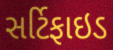
સર્ટિફાઇડ